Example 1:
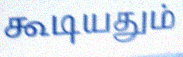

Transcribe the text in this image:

கூடியதும்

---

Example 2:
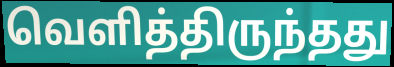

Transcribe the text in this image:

வெளித்திருந்தது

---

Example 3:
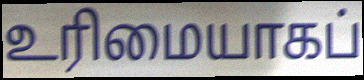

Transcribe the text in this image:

உரிமையாகப்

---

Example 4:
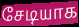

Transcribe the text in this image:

சேடியாக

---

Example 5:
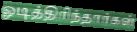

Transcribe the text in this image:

ஓடித்திரிந்தார்கள்